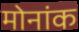
मोनांक